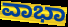
ವಾಭಾ